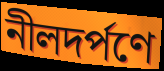
নীলদর্পণে